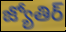
జ్యోతిర్